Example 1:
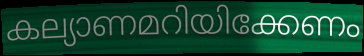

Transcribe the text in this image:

കല്യാണമറിയിക്കേണം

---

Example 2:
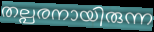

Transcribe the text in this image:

തല്പരനായിരുന്ന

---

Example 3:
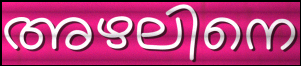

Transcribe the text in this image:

അഴലിനെ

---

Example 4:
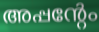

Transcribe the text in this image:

അപ്പന്റേം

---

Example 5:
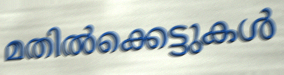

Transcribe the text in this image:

മതിൽക്കെട്ടുകൾ